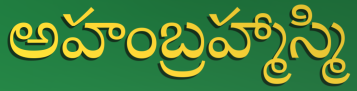
అహంబ్రహ్మాస్మి